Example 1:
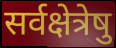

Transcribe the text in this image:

सर्वक्षेत्रेषु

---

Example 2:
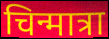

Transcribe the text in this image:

चिन्मात्रा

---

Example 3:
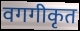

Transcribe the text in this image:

वगगीकृत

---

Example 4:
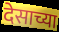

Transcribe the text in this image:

देसाच्या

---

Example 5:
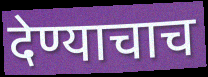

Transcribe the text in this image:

देण्याचाच